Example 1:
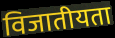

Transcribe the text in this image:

विजातीयता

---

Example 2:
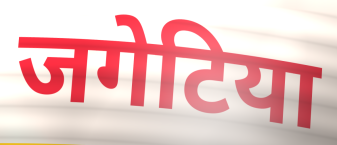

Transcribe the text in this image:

जगेटिया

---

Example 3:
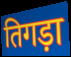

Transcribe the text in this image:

तिगड़ा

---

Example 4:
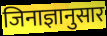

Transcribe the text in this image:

जिनाज्ञानुसार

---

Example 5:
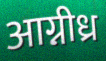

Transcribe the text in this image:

आग्नीध्र